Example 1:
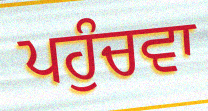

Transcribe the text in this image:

ਪਹੁੰਚਵਾ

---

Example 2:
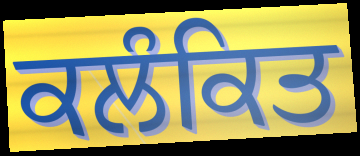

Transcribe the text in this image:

ਕਲੰਕਿਤ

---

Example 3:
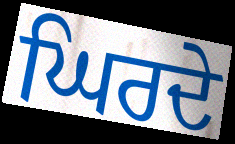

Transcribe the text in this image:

ਘਿਰਦੇ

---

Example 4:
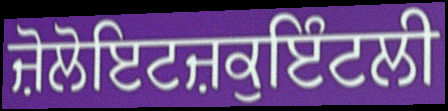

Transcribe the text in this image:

ਜ਼ੋਲੋਇਟਜ਼ਕੁਇੰਟਲੀ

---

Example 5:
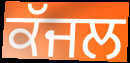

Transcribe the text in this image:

ਕੱਜਲ